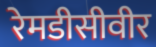
रेमडीसीवीर